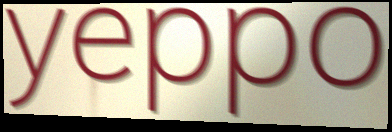
yeppo